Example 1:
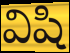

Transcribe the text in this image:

విషి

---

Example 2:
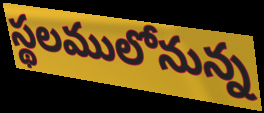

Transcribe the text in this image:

స్థలములోనున్న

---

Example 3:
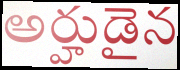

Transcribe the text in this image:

అర్హుడైన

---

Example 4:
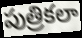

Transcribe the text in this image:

పుత్రికలా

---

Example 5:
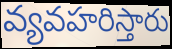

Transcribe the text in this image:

వ్యవహరిస్తారు